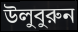
উলুবুরুন